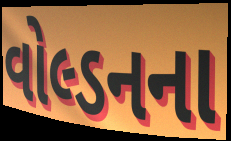
વોલ્ડનના